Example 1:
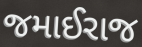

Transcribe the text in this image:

જમાઈરાજ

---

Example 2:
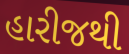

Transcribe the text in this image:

હારીજથી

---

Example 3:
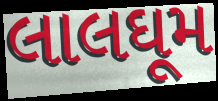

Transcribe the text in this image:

લાલઘૂમ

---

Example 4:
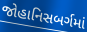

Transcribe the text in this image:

જોહાનિસબર્ગમાં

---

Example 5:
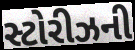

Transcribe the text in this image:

સ્ટોરીઝની